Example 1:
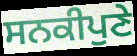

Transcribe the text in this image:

ਸਨਕੀਪੁਣੇ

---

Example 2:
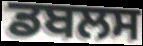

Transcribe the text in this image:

ਡਬਲਸ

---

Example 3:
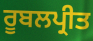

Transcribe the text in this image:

ਰੂਬਲਪ੍ਰੀਤ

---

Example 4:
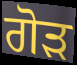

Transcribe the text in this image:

ਗੋੜ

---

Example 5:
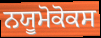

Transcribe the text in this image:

ਨਯੂਮੋਕੋਕਸ